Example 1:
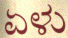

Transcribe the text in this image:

ಏಳು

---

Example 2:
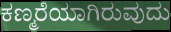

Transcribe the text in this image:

ಕಣ್ಮರೆಯಾಗಿರುವುದು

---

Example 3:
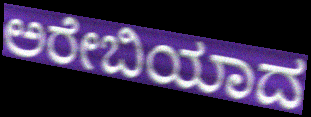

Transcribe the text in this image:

ಅರೇಬಿಯಾದ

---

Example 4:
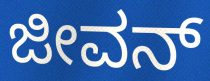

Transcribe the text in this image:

ಜೀವನ್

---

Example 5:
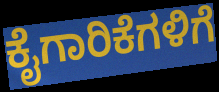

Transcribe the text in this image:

ಕೈಗಾರಿಕೆಗಳಿಗೆ